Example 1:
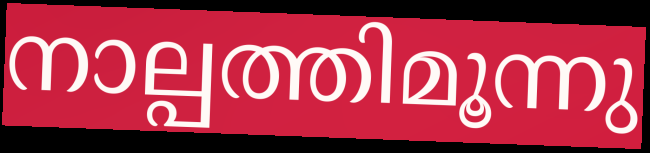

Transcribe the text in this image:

നാല്പത്തിമൂന്നു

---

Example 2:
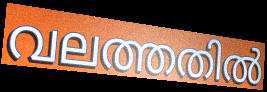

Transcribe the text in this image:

വലത്തതിൽ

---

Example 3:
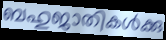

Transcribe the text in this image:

ബഹുജാതികൾക്കു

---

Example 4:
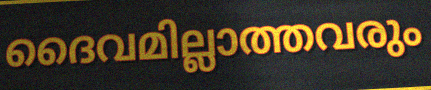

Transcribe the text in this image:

ദൈവമില്ലാത്തവരും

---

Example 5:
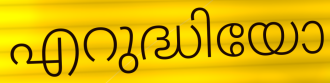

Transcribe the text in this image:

എറുദ്ധിയോ